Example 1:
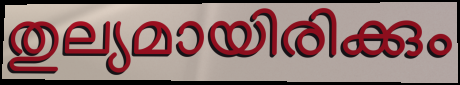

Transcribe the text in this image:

തുല്യമായിരിക്കും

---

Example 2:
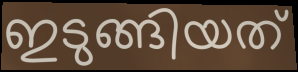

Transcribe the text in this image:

ഇടുങ്ങിയത്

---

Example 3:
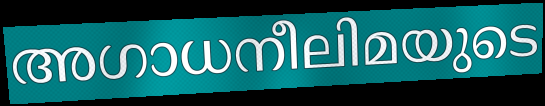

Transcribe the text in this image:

അഗാധനീലിമയുടെ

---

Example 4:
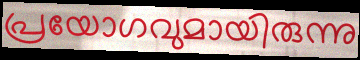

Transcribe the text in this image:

പ്രയോഗവുമായിരുന്നു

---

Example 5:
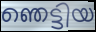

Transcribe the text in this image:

ഞെട്ടിയ